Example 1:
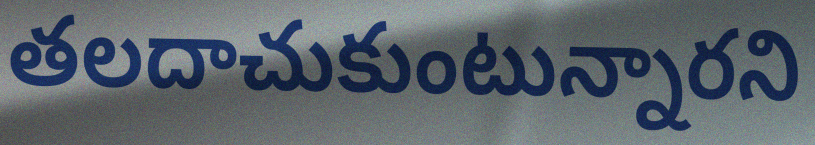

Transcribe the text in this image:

తలదాచుకుంటున్నారని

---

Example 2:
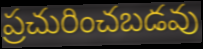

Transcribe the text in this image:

ప్రచురించబడవు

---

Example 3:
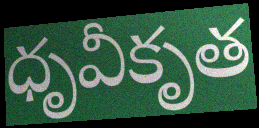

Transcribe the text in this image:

ధృవీకృత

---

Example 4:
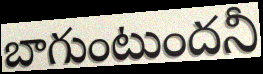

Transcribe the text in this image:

బాగుంటుందనీ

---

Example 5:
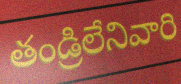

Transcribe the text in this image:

తండ్రిలేనివారి